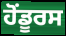
ਹੋਂਡੂਰਸ